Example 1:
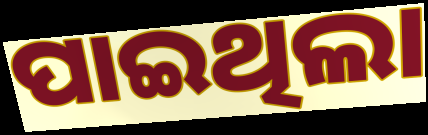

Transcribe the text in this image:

ପାଇଥିଲା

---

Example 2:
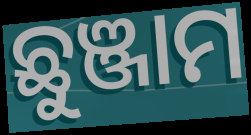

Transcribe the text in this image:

ଛୁଞ୍ଜାମ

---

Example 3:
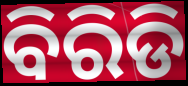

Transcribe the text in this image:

ବିରିଡି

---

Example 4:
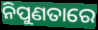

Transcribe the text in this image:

ନିପୁଣତାରେ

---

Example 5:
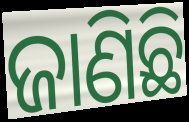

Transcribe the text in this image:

ଜାଣିଛି